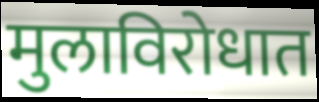
मुलाविरोधात